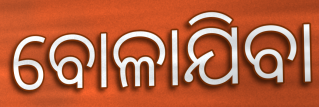
ବୋଳାଯିବା